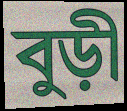
বুড়ী